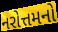
નરોત્તમનો